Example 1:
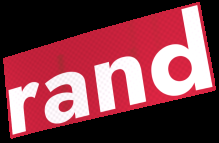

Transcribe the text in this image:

rand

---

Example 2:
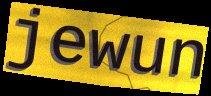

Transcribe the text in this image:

jewun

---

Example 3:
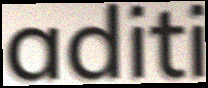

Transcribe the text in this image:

aditi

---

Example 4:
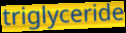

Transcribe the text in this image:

triglyceride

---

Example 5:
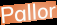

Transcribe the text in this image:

Pallor